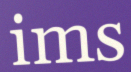
ims